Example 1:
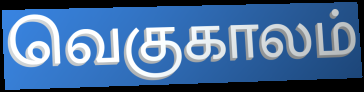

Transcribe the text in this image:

வெகுகாலம்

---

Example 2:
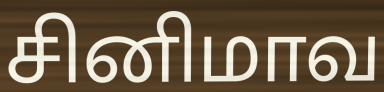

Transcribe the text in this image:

சினிமாவ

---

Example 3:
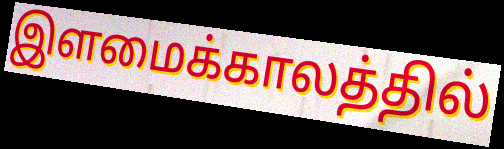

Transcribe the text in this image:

இளமைக்காலத்தில்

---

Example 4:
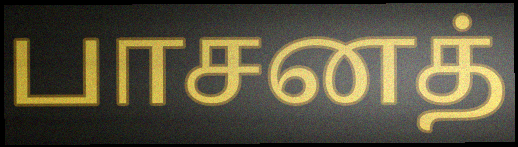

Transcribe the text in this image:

பாசனத்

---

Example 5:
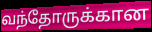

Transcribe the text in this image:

வந்தோருக்கான